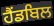
ਹੈਂਡਬਿਲ